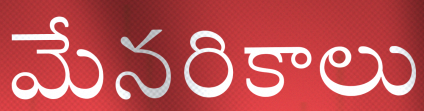
మేనరికాలు